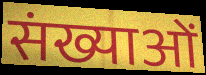
संख्याओं